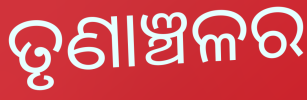
ତୃଣାଞ୍ଚଳର